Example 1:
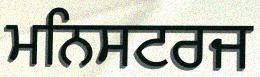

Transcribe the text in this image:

ਮਨਿਸਟਰਜ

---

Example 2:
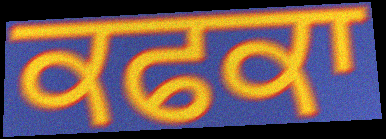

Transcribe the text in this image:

ਕਫਕਾ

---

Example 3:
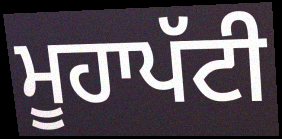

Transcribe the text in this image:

ਮੂਹਾਪੱਟੀ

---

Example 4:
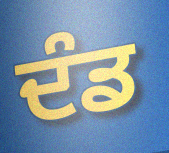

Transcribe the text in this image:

ਦੰਡ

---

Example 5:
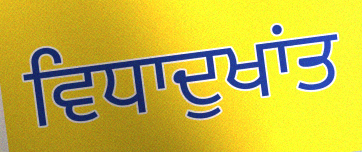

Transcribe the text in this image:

ਵਿਧਾਦੁਖਾਂਤ